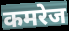
कमरेज